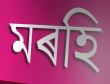
মৰহি